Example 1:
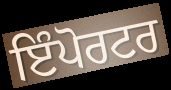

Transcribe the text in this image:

ਇੰਪੋਰਟਰ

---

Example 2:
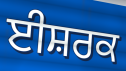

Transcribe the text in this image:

ਈਸ਼ਰਕ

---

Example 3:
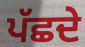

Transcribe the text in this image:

ਪੱਛਦੇ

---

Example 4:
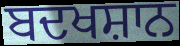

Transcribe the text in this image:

ਬਦਖਸ਼ਾਨ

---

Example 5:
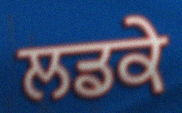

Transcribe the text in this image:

ਲਡਕੇ